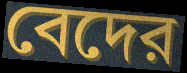
বেদের